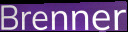
Brenner